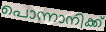
പൊന്നാനിക്ക്